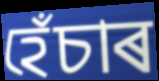
হেঁচাৰ